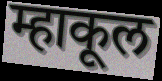
म्हाकूल